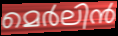
മെർലിൻ